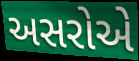
અસરોએ